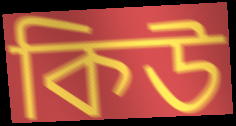
কিউ